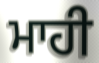
ਮਾਹੀ